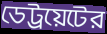
ডেট্রয়েটের